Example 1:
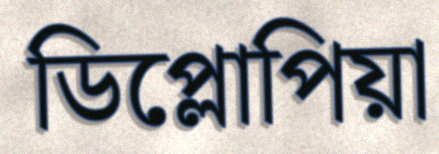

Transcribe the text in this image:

ডিপ্লোপিয়া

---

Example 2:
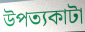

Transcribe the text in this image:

উপত্যকাটা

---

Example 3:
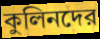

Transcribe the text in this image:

কুলিনদের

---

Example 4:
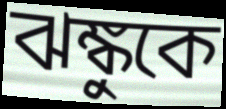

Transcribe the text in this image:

ঝঙ্কুকে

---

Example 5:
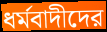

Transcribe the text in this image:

ধর্মবাদীদের